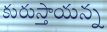
కురుస్తాయన్న